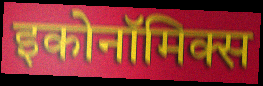
इकोनॉमिक्स